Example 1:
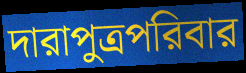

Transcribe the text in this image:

দারাপুত্রপরিবার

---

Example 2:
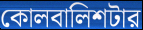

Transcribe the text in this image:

কোলবালিশটার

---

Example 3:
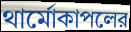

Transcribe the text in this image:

থার্মোকাপলের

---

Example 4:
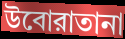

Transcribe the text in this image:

উবোরাতানা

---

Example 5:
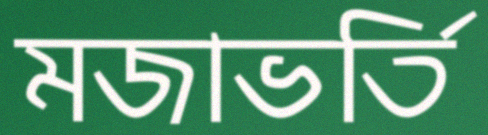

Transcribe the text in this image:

মজাভর্তি